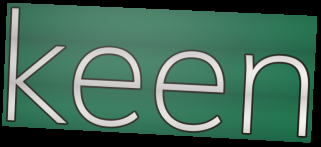
keen